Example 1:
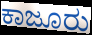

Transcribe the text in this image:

ಕಾಜೂರು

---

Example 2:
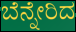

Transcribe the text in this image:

ಬೆನ್ನೇರಿದ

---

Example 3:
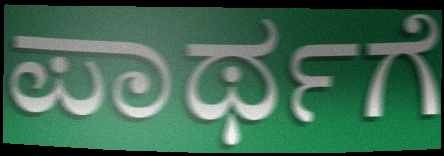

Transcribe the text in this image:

ಪಾರ್ಥಗೆ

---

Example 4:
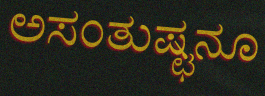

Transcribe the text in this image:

ಅಸಂತುಷ್ಟನೂ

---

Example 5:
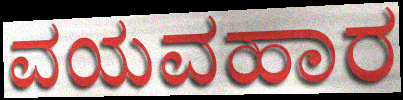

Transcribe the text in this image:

ವಯವಹಾರ